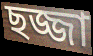
ছজ্জা